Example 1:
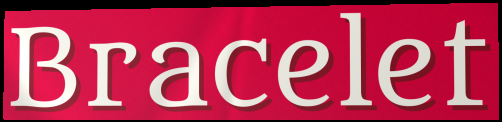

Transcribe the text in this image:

Bracelet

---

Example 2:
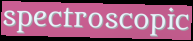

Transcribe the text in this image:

spectroscopic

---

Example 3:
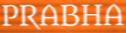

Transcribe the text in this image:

PRABHA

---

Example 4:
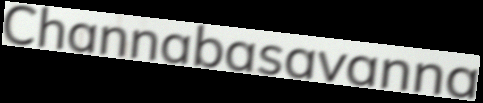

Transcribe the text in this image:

Channabasavanna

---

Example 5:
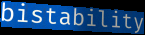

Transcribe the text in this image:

bistability